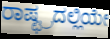
ರಾಷ್ಟ್ರದಲ್ಲಿಯೇ